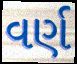
વર્ણ